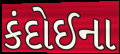
કંદોઈના